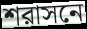
শরাসনে